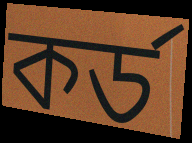
কৰ্ড